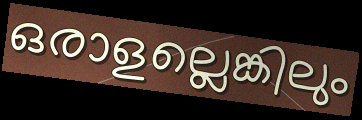
ഒരാളല്ലെങ്കിലും